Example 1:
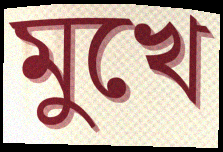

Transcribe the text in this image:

মুখে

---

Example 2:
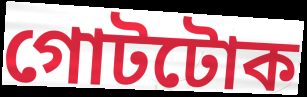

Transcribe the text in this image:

গোটটোক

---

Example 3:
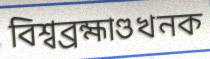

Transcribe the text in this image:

বিশ্বব্ৰহ্মাণ্ডখনক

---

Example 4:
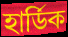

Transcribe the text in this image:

হাৰ্ডিক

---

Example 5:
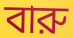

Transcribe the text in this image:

বাৰু